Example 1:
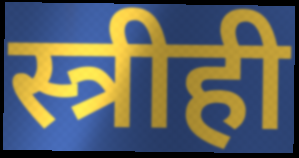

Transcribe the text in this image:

स्त्रीही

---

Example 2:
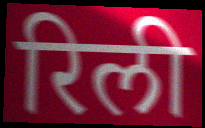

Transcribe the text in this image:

रिली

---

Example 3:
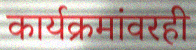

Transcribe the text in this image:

कार्यक्रमांवरही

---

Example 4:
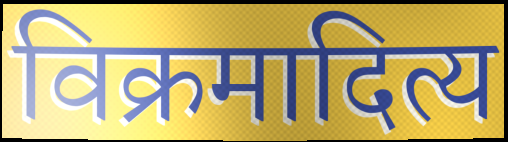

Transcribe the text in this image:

विक्रमादित्य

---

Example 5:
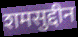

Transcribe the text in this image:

शमसुद्दीन